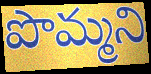
పొమ్మని